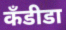
कॅंडीडा